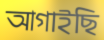
আগাইছি